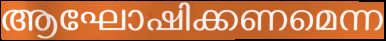
ആഘോഷിക്കണമെന്ന